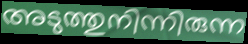
അടുത്തുനിന്നിരുന്ന